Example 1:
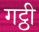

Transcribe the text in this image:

गट्ठी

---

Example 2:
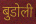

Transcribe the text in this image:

बुडोली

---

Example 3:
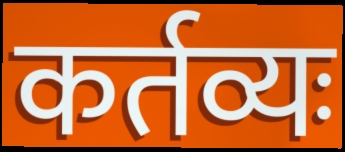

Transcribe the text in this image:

कर्तव्यः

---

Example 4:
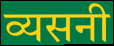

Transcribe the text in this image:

व्यसनी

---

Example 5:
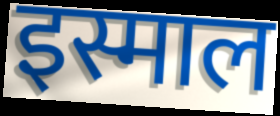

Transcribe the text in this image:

इस्माल